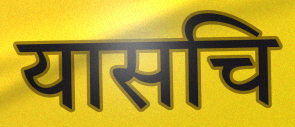
यासचि